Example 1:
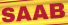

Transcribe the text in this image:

SAAB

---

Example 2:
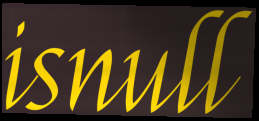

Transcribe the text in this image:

isnull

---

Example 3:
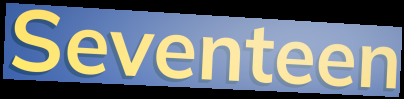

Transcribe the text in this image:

Seventeen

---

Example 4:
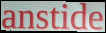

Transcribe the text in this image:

anstide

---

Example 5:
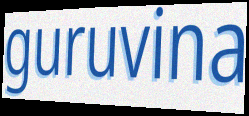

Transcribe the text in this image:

guruvina